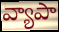
వ్యాపా